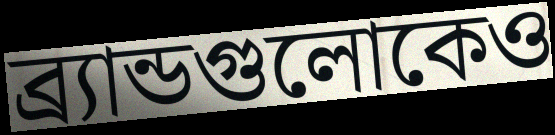
ব্র্যান্ডগুলোকেও